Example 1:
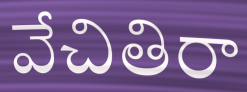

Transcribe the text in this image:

వేచితిరా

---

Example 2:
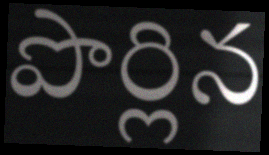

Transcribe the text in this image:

పొర్లిన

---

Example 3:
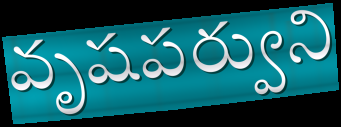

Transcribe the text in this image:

వృషపర్వుని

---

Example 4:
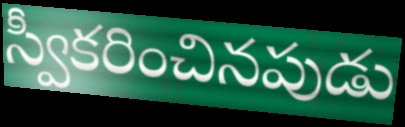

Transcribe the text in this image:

స్వీకరించినపుడు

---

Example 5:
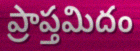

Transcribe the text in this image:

ప్రాప్తమిదం